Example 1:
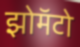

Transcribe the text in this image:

झोमॅटो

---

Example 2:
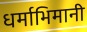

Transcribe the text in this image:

धर्माभिमानी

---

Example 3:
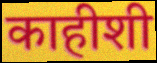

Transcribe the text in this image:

काहीशी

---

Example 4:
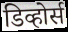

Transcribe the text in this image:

डिव्होर्स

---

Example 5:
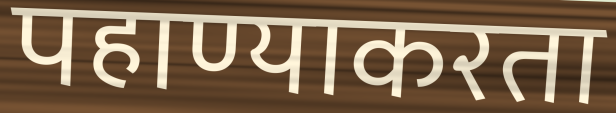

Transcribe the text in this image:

पहाण्याकरता